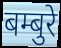
बम्बुरे